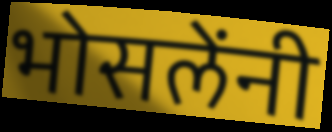
भोसलेंनी